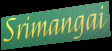
Srimangai